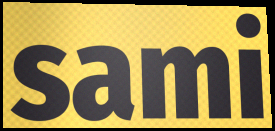
sami